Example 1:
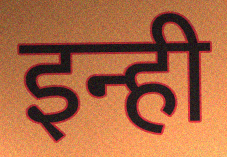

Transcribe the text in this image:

इन्ही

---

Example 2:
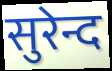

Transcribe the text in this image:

सुरेन्द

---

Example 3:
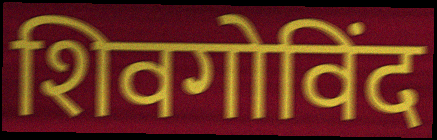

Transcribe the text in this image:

शिवगोविंद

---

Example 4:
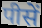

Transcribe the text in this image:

पीसें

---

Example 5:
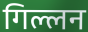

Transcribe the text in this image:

गिल्लन